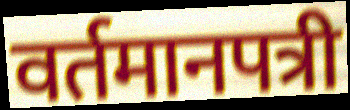
वर्तमानपत्री